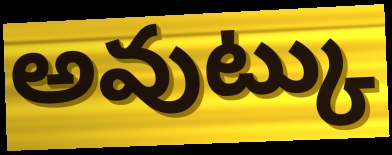
అవుట్కు